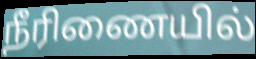
நீரிணையில்